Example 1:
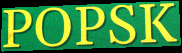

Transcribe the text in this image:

POPSK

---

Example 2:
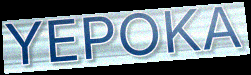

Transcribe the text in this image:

YEPOKA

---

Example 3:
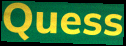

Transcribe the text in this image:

Quess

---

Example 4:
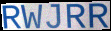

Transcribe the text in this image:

RWJRR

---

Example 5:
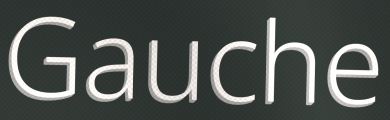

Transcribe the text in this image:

Gauche